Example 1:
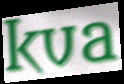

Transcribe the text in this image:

kua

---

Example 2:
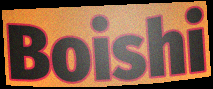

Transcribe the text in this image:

Boishi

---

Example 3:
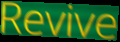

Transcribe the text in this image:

Revive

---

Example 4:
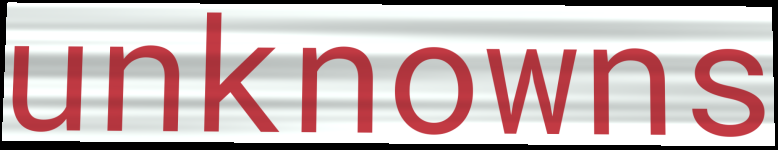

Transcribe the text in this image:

unknowns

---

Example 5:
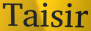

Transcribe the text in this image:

Taisir